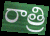
రాత్రి